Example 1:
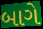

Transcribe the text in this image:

બાગે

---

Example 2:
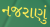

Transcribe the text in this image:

નજરાણું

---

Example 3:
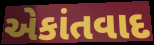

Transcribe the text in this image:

એકાંતવાદ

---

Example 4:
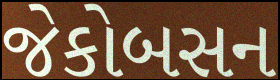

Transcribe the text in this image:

જેકોબસન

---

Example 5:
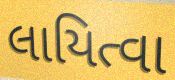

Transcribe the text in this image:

લાયિત્વા